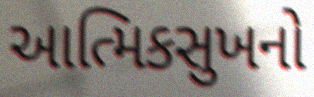
આત્મિકસુખનો